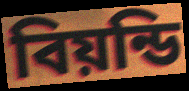
বিয়ন্ডি